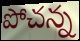
పోచన్న